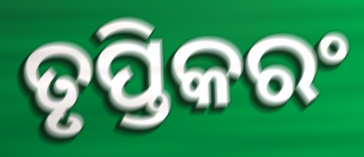
ତୃପ୍ତିକରଂ